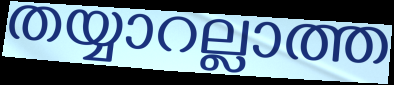
തയ്യാറല്ലാത്ത